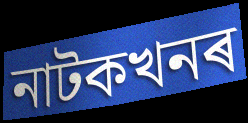
নাটকখনৰ